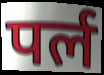
पर्ल